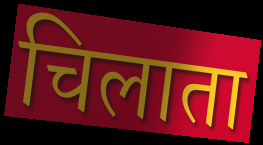
चिलाता